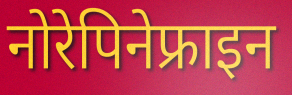
नोरेपिनेफ्राइन